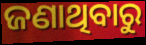
ଜଣାଥିବାରୁ